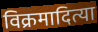
विक्रमादित्या